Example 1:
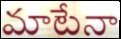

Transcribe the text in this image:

మాటేనా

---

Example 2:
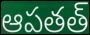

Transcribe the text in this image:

ఆపతత్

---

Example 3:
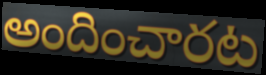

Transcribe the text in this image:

అందించారట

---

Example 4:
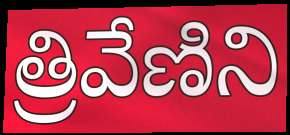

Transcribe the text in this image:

త్రివేణిని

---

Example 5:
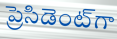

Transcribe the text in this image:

ప్రెసిడెంట్‌గా